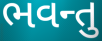
ભવન્તુ